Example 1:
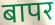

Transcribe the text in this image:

बापर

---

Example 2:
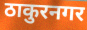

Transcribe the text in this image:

ठाकुरनगर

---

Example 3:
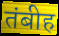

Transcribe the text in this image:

तंबीह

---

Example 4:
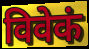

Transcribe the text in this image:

विवेकं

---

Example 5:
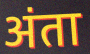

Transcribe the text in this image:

अंता